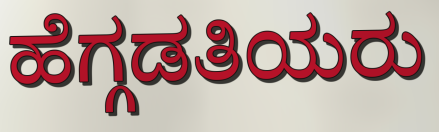
ಹೆಗ್ಗಡತಿಯರು